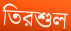
তিরশুল